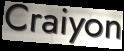
Craiyon